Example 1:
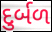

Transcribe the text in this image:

દુર્બળ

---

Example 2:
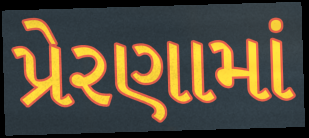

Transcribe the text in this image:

પ્રેરણામાં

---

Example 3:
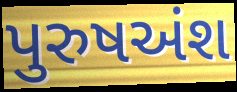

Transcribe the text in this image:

પુરુષઅંશ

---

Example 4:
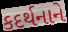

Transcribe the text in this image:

કદર્થનાને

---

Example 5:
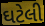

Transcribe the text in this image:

ઘટેલી